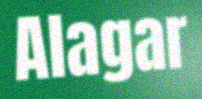
Alagar